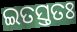
ଇତସ୍ତତଃ